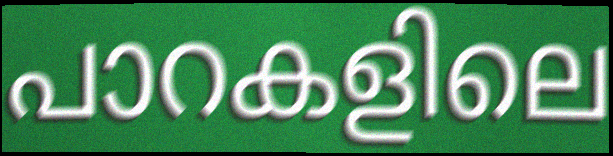
പാറകളിലെ